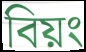
বিয়ং